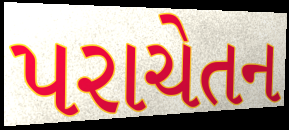
પરાચેતન